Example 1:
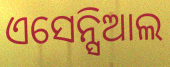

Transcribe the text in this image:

ଏସେନ୍ସିଆଲ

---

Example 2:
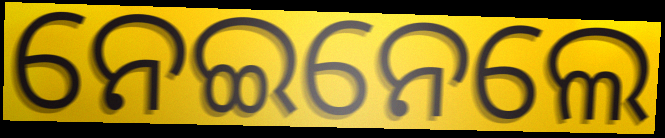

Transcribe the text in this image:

ନେଇନେଲେ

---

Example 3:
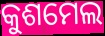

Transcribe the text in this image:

କୁଶମେଲ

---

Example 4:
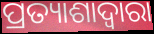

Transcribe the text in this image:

ପ୍ରତ୍ୟାଶାଦ୍ୱାରା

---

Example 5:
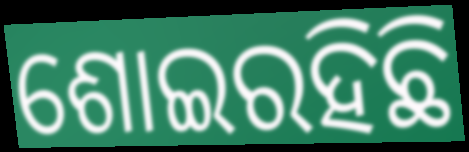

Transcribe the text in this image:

ଶୋଇରହିଛି